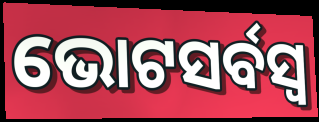
ଭୋଟସର୍ବସ୍ବ